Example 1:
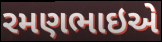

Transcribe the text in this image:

રમણભાઇએ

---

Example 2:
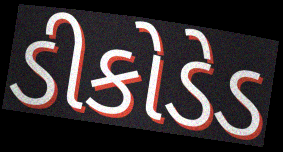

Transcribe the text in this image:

ડીકોડેડ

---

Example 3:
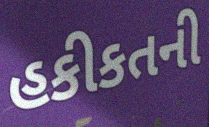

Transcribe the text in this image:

હકીકતની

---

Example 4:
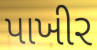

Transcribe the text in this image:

પાખીર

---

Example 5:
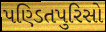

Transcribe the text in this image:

પણ્ડિતપુરિસો